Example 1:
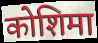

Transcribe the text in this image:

कोशिमा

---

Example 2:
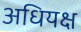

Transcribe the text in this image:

अधियक्ष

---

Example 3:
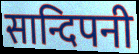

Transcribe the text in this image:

सान्दिपनी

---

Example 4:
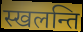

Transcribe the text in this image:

स्खलन्ति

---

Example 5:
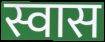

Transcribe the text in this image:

स्वास